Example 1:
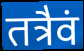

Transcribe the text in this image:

तत्रैवं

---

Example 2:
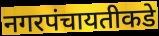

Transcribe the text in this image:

नगरपंचायतीकडे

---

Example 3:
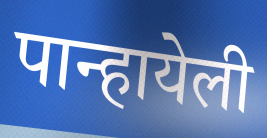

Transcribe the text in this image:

पान्हायेली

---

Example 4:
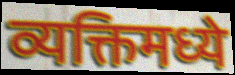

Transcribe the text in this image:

व्यक्तिमध्ये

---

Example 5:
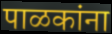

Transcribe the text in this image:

पाळकांना